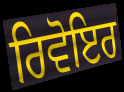
ਰਿਵੋਇਰ